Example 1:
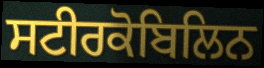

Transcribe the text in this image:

ਸਟੀਰਕੋਬਿਲਿਨ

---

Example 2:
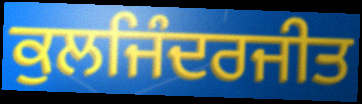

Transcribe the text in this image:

ਕੁਲਜਿੰਦਰਜੀਤ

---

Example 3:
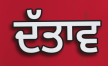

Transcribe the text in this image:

ਦੱਤਾਵ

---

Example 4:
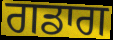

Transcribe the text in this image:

ਗਡਾਗ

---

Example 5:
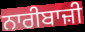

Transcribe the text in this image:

ਨਾਰੀਬਾਜ਼ੀ